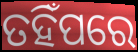
ତହିଁପରେ